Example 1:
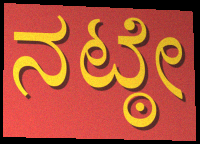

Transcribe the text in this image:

ನಟ್ಠೇ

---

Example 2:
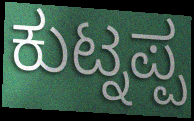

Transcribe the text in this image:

ಕುಟ್ನಪ್ಪ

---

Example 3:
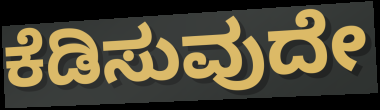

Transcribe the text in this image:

ಕೆಡಿಸುವುದೇ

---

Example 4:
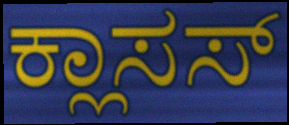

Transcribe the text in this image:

ಕ್ಲಾಸಸ್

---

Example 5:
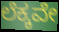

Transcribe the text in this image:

ಲೆಕ್ಕವೇ